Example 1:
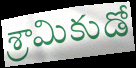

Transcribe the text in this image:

శ్రామికుడో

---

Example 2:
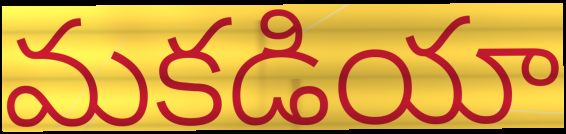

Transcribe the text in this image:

మకడియా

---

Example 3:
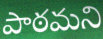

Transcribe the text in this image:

పాఠమని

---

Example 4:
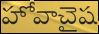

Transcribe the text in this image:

హోవాచైష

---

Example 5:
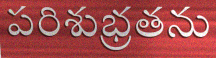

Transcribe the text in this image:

పరిశుభ్రతను